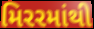
મિરરમાંથી